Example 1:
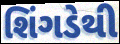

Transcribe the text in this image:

શિંગડેથી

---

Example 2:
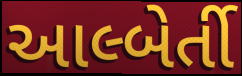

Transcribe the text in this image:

આલ્બેર્તી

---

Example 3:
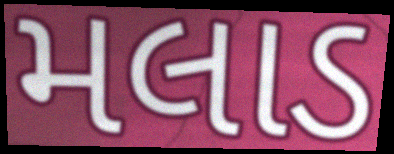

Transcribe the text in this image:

મલાડ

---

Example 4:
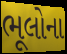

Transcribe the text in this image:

ભૂલોના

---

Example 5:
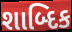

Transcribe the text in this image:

શાબ્દિક